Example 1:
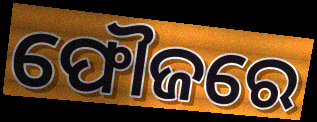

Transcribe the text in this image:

ଫୌଜରେ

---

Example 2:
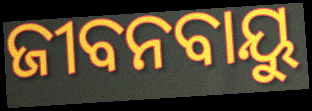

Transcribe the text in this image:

ଜୀବନବାୟୁ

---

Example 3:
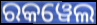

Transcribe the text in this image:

ରକୱେଲ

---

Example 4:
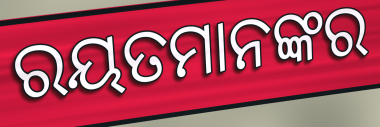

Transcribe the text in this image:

ରୟତମାନଙ୍କର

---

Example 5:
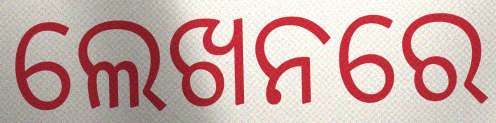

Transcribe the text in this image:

ଲେଖନରେ